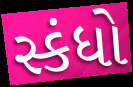
સ્કંધો